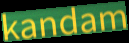
kandam